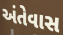
અંતેવાસ